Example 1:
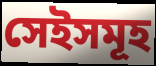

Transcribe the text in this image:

সেইসমূহ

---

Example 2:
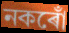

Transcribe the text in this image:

নকৰোঁ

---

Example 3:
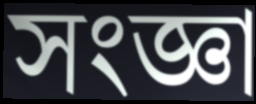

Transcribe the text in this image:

সংজ্ঞা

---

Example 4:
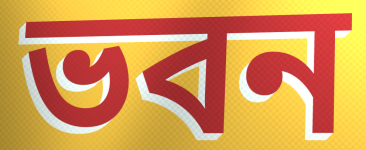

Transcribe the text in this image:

ভবন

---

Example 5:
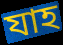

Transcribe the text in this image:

যাহ